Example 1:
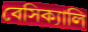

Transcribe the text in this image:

বেসিক্যালি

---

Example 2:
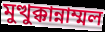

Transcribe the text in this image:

মুত্থুক্কান্নাম্মল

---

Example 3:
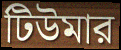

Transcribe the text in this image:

টিউমার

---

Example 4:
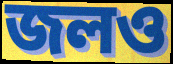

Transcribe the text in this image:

জলও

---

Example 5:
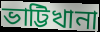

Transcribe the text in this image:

ভাট্টিখানা